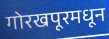
गोरखपूरमधून